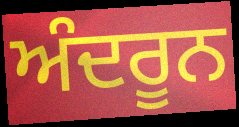
ਅੰਦਰੂਨ